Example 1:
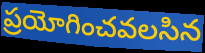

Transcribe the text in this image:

ప్రయోగించవలసిన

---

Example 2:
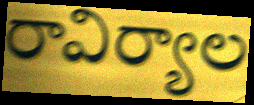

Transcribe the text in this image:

రావిర్యాల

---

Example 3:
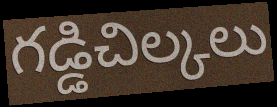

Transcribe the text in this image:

గడ్డిచిల్కలు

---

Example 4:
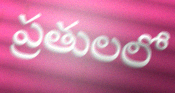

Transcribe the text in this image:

ప్రతులలో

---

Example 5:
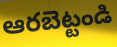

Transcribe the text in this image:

ఆరబెట్టండి